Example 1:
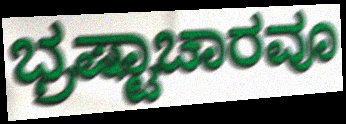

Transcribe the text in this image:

ಭ್ರಷ್ಟಾಚಾರವೂ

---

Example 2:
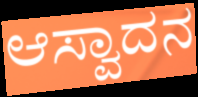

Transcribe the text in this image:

ಆಸ್ವಾದನ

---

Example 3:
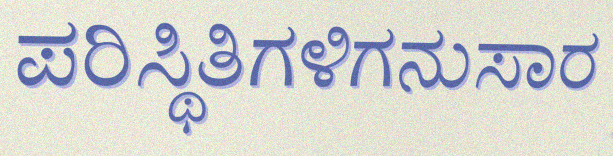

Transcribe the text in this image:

ಪರಿಸ್ಥಿತಿಗಳಿಗನುಸಾರ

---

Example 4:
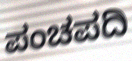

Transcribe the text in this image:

ಪಂಚಪದಿ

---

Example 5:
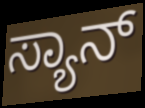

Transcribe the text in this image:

ಸ್ಯಾನ್